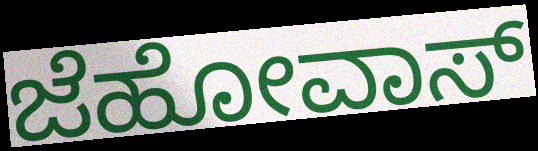
ಜೆಹೋವಾಸ್